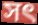
সৎ